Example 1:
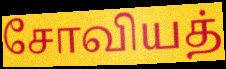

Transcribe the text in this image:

சோவியத்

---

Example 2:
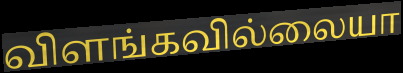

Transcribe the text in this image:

விளங்கவில்லையா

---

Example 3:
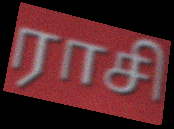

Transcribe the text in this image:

ராசி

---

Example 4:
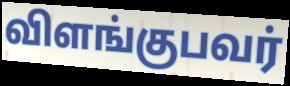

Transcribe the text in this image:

விளங்குபவர்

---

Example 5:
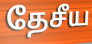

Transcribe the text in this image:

தேசீய